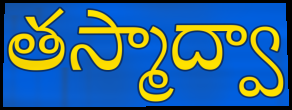
తస్మాద్వా